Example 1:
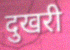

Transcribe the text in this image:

दुखरी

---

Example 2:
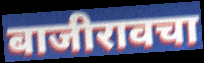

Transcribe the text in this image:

बाजीरावचा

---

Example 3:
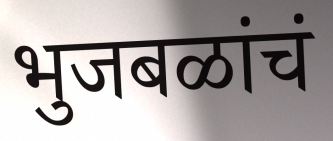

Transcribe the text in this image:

भुजबळांचं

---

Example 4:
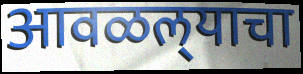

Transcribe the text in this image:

आवळल्याचा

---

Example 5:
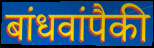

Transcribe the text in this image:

बांधवांपैकी